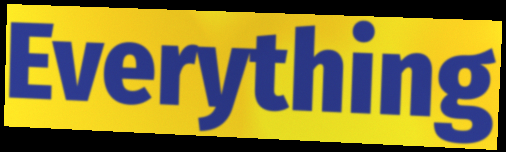
Everything